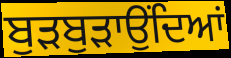
ਬੁੜਬੁੜਾਉਂਦਿਆਂ